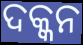
ଦକ୍କନ